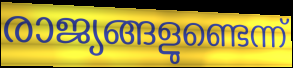
രാജ്യങ്ങളുണ്ടെന്ന്